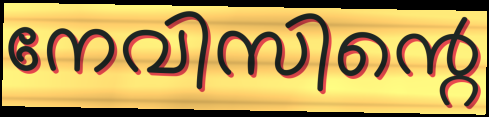
നേവിസിന്റെ